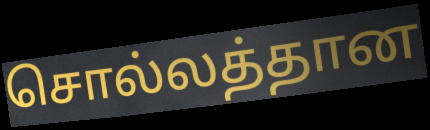
சொல்லத்தான